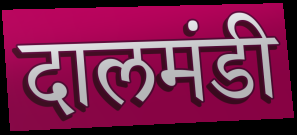
दालमंडी